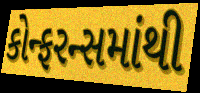
કોન્ફરન્સમાંથી